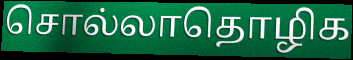
சொல்லாதொழிக